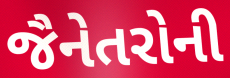
જૈનેતરોની